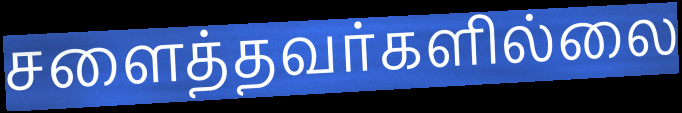
சளைத்தவர்களில்லை